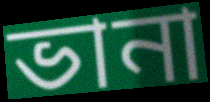
ভানা